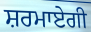
ਸ਼ਰਮਾਏਗੀ